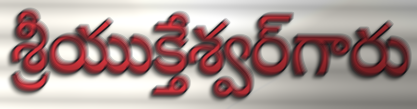
శ్రీయుక్తేశ్వర్‌గారు